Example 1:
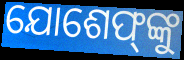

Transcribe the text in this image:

ଯୋଶେଫ୍‌ଙ୍କୁ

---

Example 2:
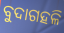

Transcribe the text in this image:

ବୁଦାଗହଳି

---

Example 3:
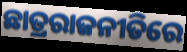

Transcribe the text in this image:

ଛାତ୍ରରାଜନୀତିରେ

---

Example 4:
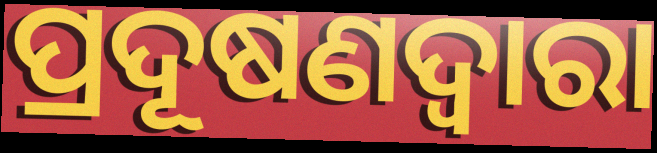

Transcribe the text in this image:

ପ୍ରଦୂଷଣଦ୍ବାରା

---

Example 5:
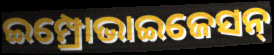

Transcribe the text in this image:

ଇମ୍ପ୍ରୋଭାଇଜେସନ୍